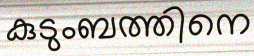
കുടുംബത്തിനെ